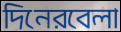
দিনেরবেলা